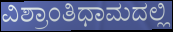
ವಿಶ್ರಾಂತಿಧಾಮದಲ್ಲಿ